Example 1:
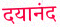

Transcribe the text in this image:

दयानंद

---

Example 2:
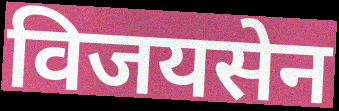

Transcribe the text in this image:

विजयसेन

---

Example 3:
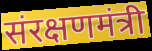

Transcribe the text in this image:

संरक्षणमंत्री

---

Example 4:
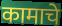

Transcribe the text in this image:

कामाचे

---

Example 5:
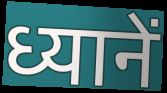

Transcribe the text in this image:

ध्यानें